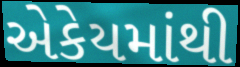
એકેયમાંથી